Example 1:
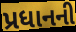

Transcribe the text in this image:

પ્રધાનની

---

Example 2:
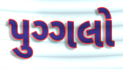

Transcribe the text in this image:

પુગ્ગલો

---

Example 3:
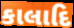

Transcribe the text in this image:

કાલાદિ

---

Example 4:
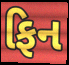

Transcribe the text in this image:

ફિન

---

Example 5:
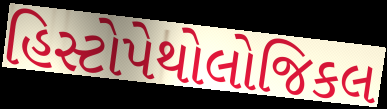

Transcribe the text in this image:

હિસ્ટોપેથોલોજિકલ